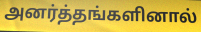
அனர்த்தங்களினால்